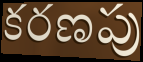
కరణపు